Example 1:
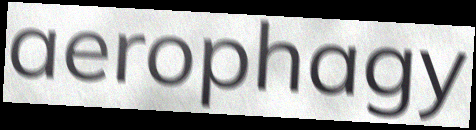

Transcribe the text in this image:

aerophagy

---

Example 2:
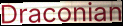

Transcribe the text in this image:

Draconian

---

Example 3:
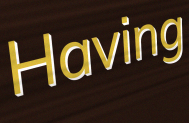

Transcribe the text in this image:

Having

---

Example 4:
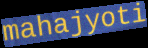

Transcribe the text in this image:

mahajyoti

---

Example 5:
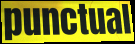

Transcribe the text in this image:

punctual